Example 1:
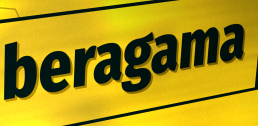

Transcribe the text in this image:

beragama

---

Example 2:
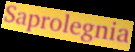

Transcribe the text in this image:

Saprolegnia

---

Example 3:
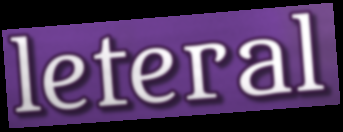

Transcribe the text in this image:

leteral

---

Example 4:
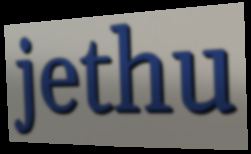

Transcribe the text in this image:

jethu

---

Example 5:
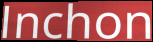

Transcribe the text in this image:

Inchon